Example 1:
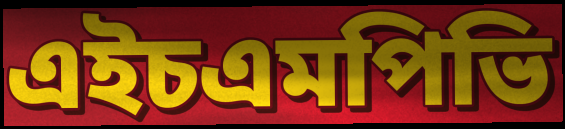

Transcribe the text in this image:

এইচএমপিভি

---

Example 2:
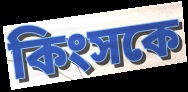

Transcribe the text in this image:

কিংসকে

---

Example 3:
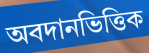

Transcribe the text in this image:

অবদানভিত্তিক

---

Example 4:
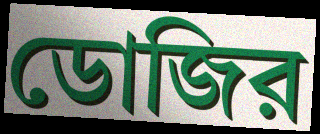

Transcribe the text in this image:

ডোজির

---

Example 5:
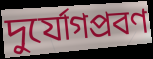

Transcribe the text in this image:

দুর্যোগপ্রবণ